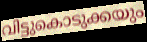
വിട്ടുകൊടുക്കയും